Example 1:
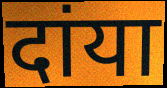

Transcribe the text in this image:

दांया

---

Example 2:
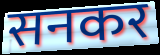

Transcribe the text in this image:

सनकर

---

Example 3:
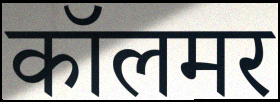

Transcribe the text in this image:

कॉलमर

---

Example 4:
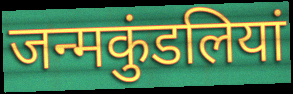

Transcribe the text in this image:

जन्मकुंडलियां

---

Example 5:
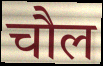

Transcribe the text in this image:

चौल